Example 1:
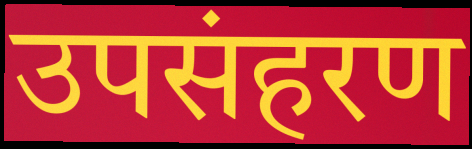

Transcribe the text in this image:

उपसंहरण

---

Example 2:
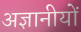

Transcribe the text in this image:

अज्ञानीयों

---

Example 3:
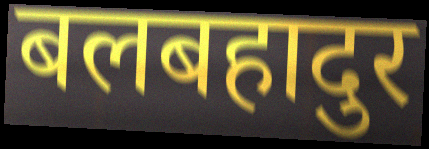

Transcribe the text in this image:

बलबहादुर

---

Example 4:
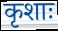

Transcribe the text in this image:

कृशाः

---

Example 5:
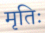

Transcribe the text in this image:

मृतिः